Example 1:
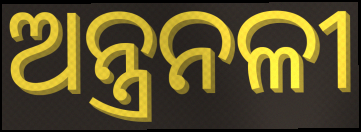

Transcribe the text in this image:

ଅନ୍ତ୍ରନଳୀ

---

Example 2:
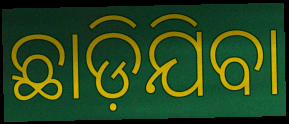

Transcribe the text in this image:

ଛାଡ଼ିଯିବା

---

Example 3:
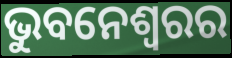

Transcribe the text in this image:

ଭୁବନେଶ୍ବରର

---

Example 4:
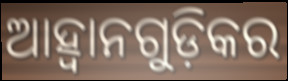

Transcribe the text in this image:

ଆହ୍ୱାନଗୁଡ଼ିକର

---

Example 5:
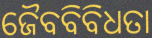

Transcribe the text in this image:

ଜୈବବିବିଧତା